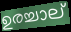
ഉരച്ചാല്